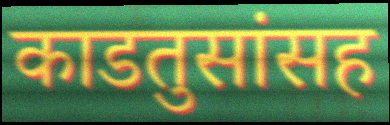
काडतुसांसह